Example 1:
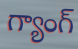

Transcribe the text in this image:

గ్యాంగ్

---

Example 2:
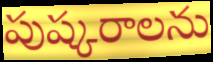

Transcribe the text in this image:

పుష్కరాలను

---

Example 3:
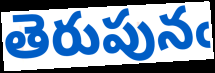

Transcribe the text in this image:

తెరుపునఁ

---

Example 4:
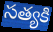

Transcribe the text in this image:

సత్యకి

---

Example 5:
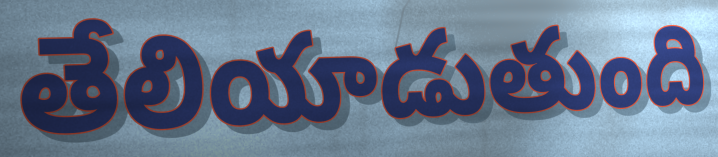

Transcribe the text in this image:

తేలియాడుతుంది